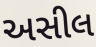
અસીલ